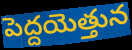
పెద్దయెత్తున